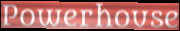
Powerhouse